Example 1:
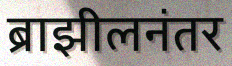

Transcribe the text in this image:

ब्राझीलनंतर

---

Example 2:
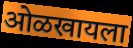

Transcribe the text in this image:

ओळखायला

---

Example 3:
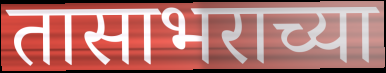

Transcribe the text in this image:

तासाभराच्या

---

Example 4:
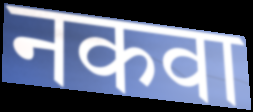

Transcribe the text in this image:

नकवा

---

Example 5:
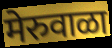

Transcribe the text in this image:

मेरुवाळा